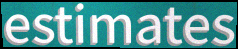
estimates